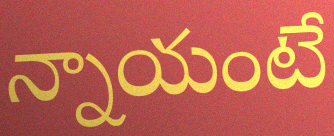
న్నాయంటే